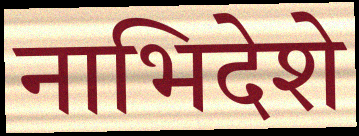
नाभिदेशे